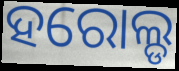
ହରୋଲ୍ଡ